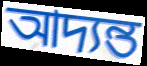
আদ্যন্ত